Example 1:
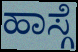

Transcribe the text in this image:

ಹಾಸ್ಗೆ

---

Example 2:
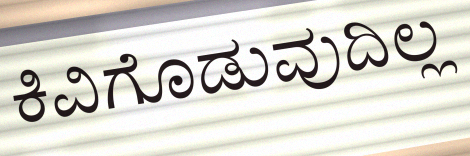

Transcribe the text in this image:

ಕಿವಿಗೊಡುವುದಿಲ್ಲ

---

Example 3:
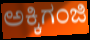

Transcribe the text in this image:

ಅಕ್ಕಿಗಂಜಿ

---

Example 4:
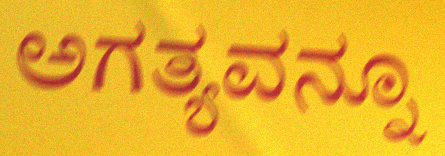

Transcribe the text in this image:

ಅಗತ್ಯವನ್ನೂ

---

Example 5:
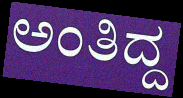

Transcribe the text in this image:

ಅಂತಿದ್ದ